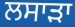
ਲਸਾੜਾ